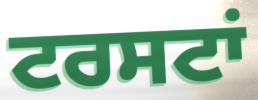
ਟਰਸਟਾਂ